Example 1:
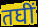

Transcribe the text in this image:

तघीं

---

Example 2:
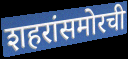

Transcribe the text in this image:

शहरांसमोरची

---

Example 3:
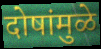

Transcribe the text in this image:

दोषांमुळे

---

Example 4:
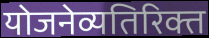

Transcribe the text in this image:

योजनेव्यतिरिक्त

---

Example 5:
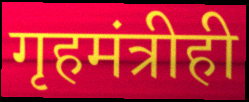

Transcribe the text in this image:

गृहमंत्रीही